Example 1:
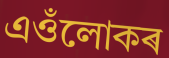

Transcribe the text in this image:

এওঁলোকৰ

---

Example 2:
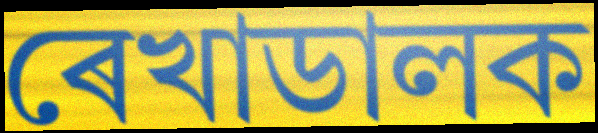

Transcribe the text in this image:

ৰেখাডালক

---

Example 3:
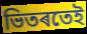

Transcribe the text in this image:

ভিতৰতেই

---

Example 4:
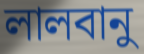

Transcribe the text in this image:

লালবানু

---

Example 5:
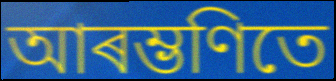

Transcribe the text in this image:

আৰম্ভণিতে